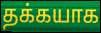
தக்கயாக